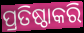
ପ୍ରତିଷ୍ଠାକରି